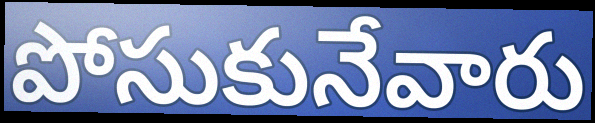
పోసుకునేవారు